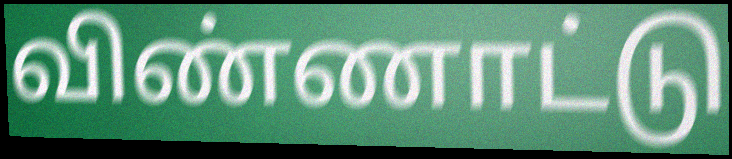
விண்ணாட்டு